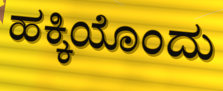
ಹಕ್ಕಿಯೊಂದು